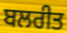
ਬਲਰੀਤ